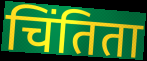
चिंतिता